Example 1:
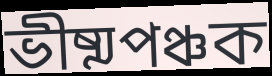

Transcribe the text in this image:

ভীষ্মপঞ্চক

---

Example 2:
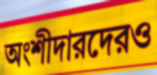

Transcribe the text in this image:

অংশীদারদেরও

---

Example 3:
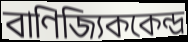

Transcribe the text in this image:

বাণিজ্যিককেন্দ্র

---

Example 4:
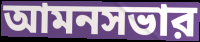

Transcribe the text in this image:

আমনসভার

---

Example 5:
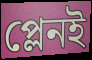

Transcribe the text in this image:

প্লেনই